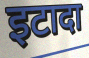
इटादा